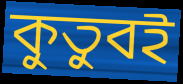
কুতুবই